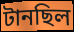
টানছিল